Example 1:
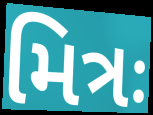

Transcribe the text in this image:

મિત્રઃ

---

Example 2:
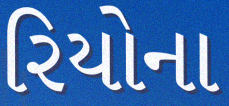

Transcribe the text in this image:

રિયોના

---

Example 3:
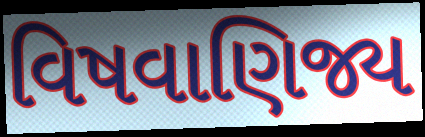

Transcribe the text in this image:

વિષવાણિજ્ય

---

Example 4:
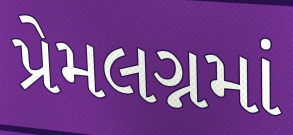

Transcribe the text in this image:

પ્રેમલગ્નમાં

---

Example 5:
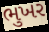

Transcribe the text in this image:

ભુખર